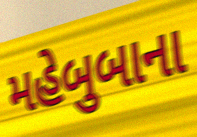
મહેબુબાના